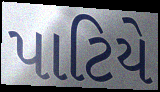
પાટિયે